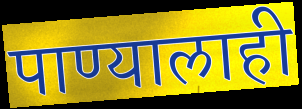
पाण्यालाही